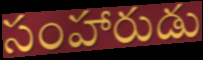
సంహారుడు